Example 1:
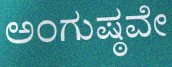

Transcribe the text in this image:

ಅಂಗುಷ್ಠವೇ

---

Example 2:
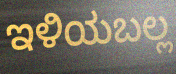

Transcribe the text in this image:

ಇಳಿಯಬಲ್ಲ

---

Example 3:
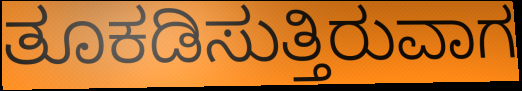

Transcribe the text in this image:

ತೂಕಡಿಸುತ್ತಿರುವಾಗ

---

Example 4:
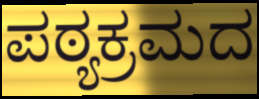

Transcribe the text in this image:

ಪಠ್ಯಕ್ರಮದ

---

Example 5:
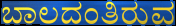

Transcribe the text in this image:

ಬಾಲದಂತಿರುವ